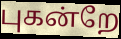
புகன்றே